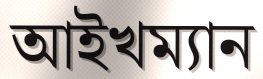
আইখম্যান